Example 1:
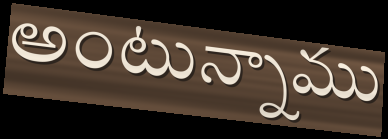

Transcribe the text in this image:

అంటున్నాము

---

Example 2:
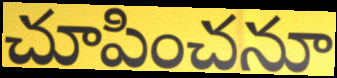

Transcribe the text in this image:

చూపించనూ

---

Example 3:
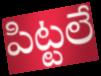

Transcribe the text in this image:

పిట్టలే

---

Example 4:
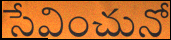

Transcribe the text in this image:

సేవించునో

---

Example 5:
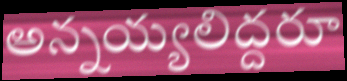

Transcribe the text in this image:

అన్నయ్యలిద్దరూ